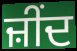
ਜ਼ੀਂਦ